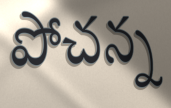
పోచన్న